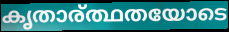
കൃതാര്ത്ഥതയോടെ